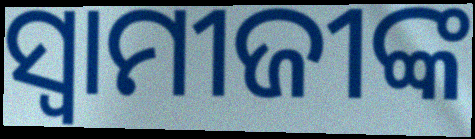
ସ୍ୱାମୀଜୀଙ୍କ